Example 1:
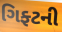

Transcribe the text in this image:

ગિફ્ટની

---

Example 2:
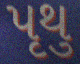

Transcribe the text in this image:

પૃથુ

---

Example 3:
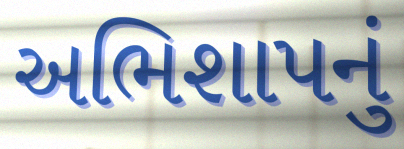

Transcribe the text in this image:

અભિશાપનું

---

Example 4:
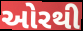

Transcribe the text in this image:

ઓરથી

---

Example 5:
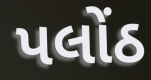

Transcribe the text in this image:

પલોંઠ